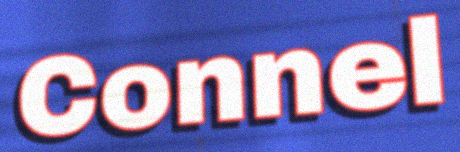
Connel